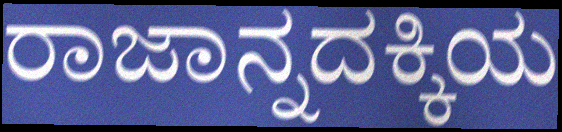
ರಾಜಾನ್ನದಕ್ಕಿಯ